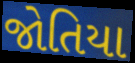
જોતિયા